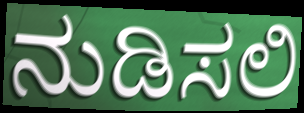
ನುಡಿಸಲಿ